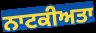
ਨਾਟਕੀਅਤਾ